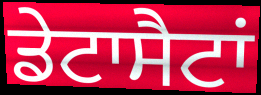
ਡੇਟਾਸੈਟਾਂ